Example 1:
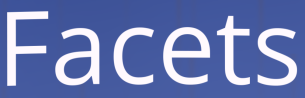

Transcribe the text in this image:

Facets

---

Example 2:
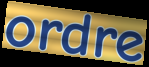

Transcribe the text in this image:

ordre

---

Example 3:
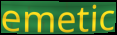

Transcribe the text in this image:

emetic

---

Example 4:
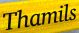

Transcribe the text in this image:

Thamils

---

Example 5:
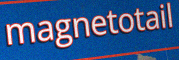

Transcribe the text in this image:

magnetotail